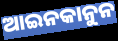
ଆଇନକାନୁନ